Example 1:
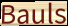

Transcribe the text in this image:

Bauls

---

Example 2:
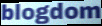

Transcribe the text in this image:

blogdom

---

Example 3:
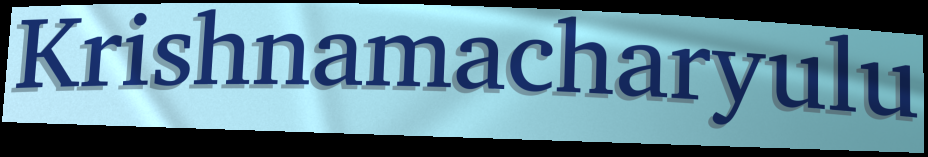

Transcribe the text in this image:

Krishnamacharyulu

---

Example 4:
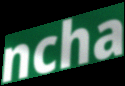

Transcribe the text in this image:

ncha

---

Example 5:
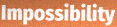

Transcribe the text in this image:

Impossibility